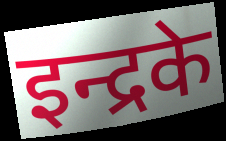
इन्द्रके